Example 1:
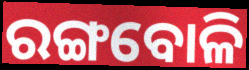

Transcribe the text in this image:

ରଙ୍ଗବୋଳି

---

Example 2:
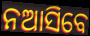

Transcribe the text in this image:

ନଆସିବେ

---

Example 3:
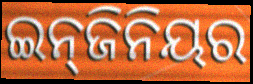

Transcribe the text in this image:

ଇନ୍‌ଜିନିୟର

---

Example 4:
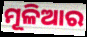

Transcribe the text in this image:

ମୂଳିଆର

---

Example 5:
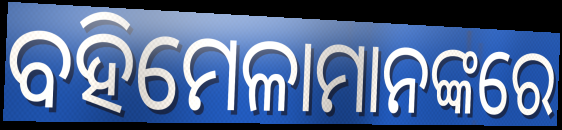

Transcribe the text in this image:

ବହିମେଳାମାନଙ୍କରେ